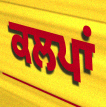
ਕਲਪਾਂ